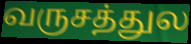
வருசத்துல